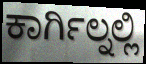
ಕಾರ್ಗಿಲ್ನಲ್ಲಿ